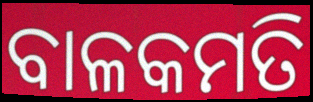
ବାଳକମତି